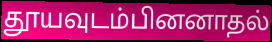
தூயவுடம்பினனாதல்